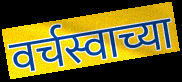
वर्चस्वाच्या